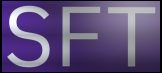
SFT